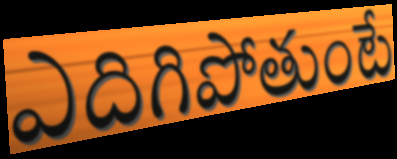
ఎదిగిపోతుంటే